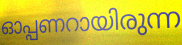
ഓപ്പണറായിരുന്ന